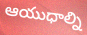
ఆయుధాల్ని